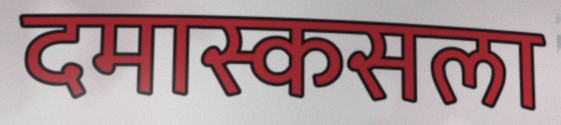
दमास्कसला